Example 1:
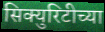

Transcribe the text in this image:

सिक्युरिटीच्या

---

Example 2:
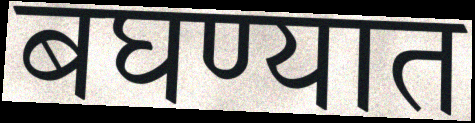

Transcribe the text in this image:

बघण्यात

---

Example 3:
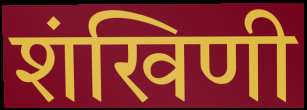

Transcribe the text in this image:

शंखिणी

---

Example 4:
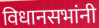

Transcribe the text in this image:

विधानसभांनी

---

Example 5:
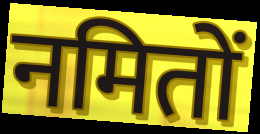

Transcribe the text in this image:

नमितों